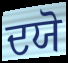
ਦਯੋ